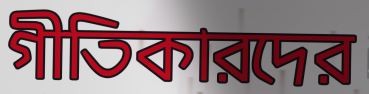
গীতিকারদের